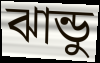
ঝান্ডু